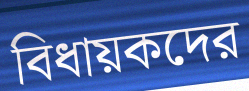
বিধায়কদের